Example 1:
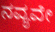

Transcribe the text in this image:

ನವ್ಯವೇ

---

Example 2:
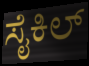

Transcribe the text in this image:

ಸೈಕಿಲ್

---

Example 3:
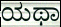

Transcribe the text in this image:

ಯಥಾ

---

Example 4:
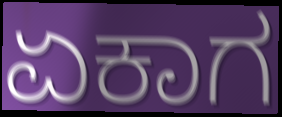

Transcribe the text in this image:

ಏಕಾಗ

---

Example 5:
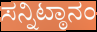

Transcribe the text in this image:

ಸನ್ನಿಟ್ಠಾನಂ